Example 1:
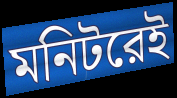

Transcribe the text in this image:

মনিটরেই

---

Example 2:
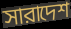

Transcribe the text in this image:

সারাদেশ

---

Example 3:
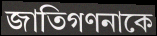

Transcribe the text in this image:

জাতিগণনাকে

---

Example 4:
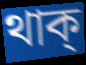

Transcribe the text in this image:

থাক্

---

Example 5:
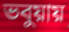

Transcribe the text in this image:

ভবুয়ায়